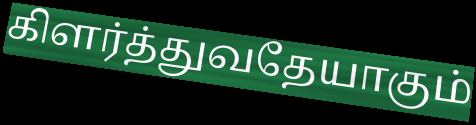
கிளர்த்துவதேயாகும்